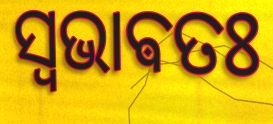
ସ୍ଵଭାଵତଃ